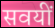
सवयीं